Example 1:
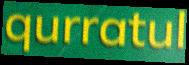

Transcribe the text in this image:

qurratul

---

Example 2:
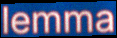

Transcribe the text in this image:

lemma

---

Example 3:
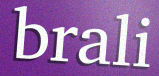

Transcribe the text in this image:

brali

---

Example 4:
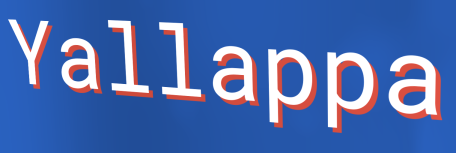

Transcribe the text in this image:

Yallappa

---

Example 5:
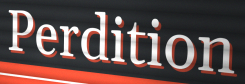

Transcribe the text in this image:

Perdition